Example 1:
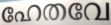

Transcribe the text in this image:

ഹേതവേ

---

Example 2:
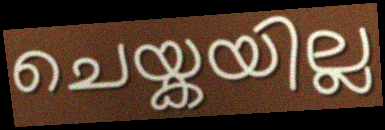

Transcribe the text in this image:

ചെയ്കയില്ല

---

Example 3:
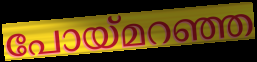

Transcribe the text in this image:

പോയ്മറഞ്ഞ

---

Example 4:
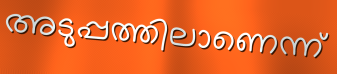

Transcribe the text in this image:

അടുപ്പത്തിലാണെന്ന്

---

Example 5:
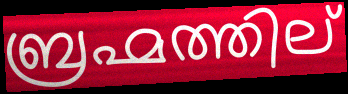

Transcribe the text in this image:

ബ്രഹ്മത്തില്